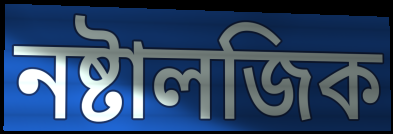
নষ্টালজিক